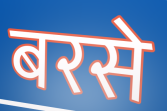
बरसे